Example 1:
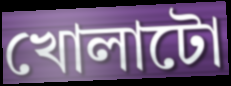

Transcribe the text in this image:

খোলাটো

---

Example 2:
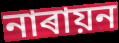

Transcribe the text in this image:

নাৰায়ন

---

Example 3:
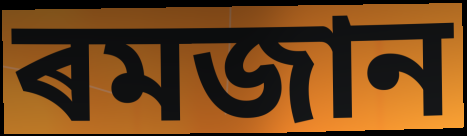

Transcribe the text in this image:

ৰমজান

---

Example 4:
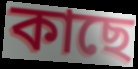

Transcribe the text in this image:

কাছে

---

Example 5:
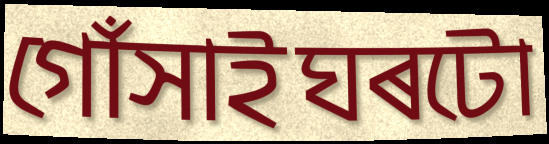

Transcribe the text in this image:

গোঁসাইঘৰটো